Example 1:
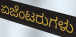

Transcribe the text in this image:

ಏಜೆಂಟರುಗಳು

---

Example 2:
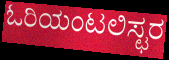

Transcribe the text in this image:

ಓರಿಯಂಟಲಿಸ್ಟರ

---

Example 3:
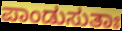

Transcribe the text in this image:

ಪಾಂಡುಸುತಾಃ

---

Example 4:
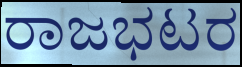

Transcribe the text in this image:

ರಾಜಭಟರ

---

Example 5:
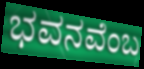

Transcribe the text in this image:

ಭವನವೆಂಬ